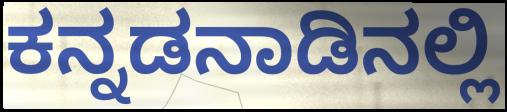
ಕನ್ನಡನಾಡಿನಲ್ಲಿ